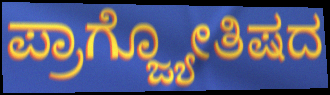
ಪ್ರಾಗ್ಜ್ಯೋತಿಷದ